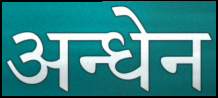
अन्धेन